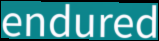
endured